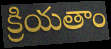
క్రియతాం